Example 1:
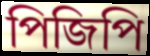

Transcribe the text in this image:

পিজিপি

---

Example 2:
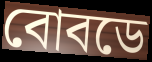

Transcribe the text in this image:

বোবডে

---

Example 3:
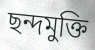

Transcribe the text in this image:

ছন্দমুক্তি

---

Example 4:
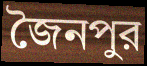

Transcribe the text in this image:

জৈনপুর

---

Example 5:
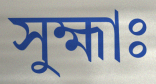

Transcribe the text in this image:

সুহ্মাঃ